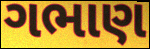
ગભાણ